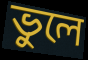
ভুলে